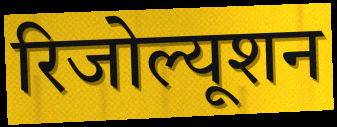
रिजोल्‍यूशन